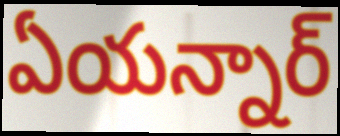
ఏయన్నార్